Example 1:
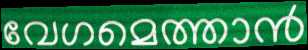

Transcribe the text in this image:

വേഗമെത്താൻ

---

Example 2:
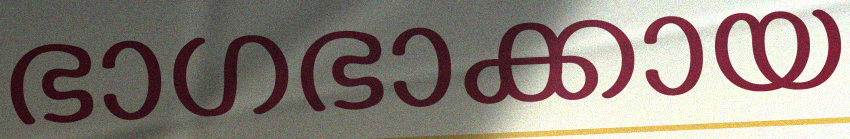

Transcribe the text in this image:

ഭാഗഭാക്കായ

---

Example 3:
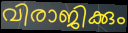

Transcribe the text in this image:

വിരാജിക്കും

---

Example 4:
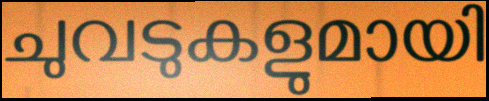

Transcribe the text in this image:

ചുവടുകളുമായി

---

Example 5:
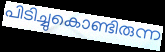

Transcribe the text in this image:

പിടിച്ചുകൊണ്ടിരുന്ന